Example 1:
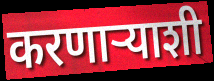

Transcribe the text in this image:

करणाऱ्याशी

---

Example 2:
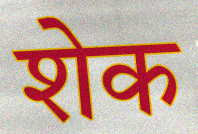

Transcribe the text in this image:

शेक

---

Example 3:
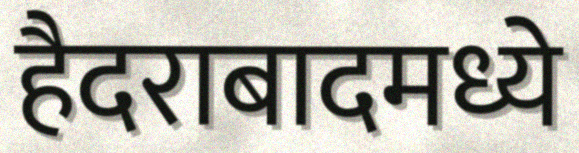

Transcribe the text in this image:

हैदराबादमध्ये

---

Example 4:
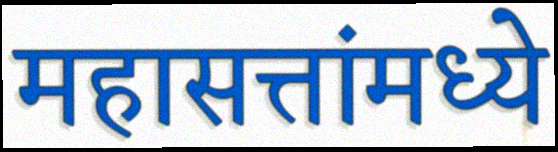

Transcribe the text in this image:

महासत्तांमध्ये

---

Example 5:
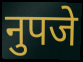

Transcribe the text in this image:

नुपजे